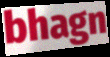
bhagn